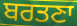
ਬਰਤਣਾ